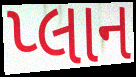
પ્લાન